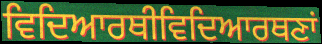
ਵਿਦਿਆਰਥੀਵਿਦਿਆਰਥਣਾਂ